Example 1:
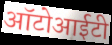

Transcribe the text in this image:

ऑटोआईटी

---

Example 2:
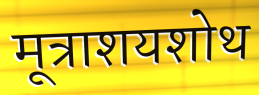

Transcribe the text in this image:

मूत्राशयशोथ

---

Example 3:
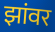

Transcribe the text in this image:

झांवर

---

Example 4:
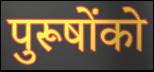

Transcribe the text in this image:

पुरूषोंको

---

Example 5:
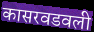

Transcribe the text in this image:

कासरवडवली